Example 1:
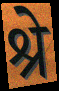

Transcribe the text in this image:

श्रे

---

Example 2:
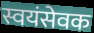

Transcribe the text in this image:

स्वयंसेवक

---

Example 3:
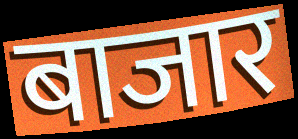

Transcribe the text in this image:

बाजार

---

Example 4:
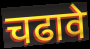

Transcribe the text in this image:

चढावे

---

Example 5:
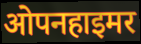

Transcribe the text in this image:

ओपनहाइमर